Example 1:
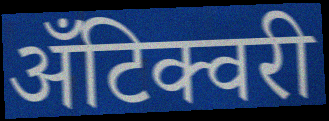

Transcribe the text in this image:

अँटिक्वरी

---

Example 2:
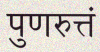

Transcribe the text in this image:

पुणरुत्तं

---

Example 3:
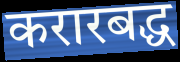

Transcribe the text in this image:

करारबद्ध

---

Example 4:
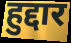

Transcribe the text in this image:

हुद्दार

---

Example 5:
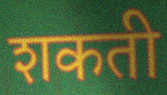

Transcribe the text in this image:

शकती